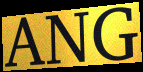
ANG